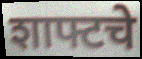
शाफ्टचे